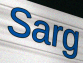
Sarg